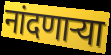
नांदणाऱ्या